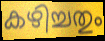
കഴിച്ചതും